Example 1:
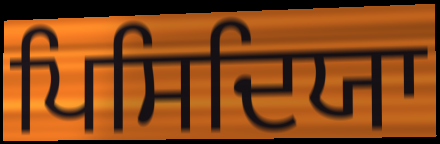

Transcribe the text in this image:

ਪਿਸਿਦਿਯਾ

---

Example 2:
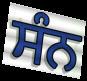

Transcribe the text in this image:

ਸੰਨ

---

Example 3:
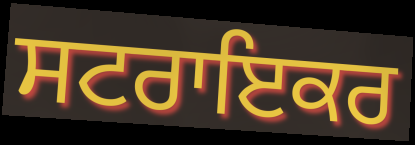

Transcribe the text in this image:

ਸਟਰਾਇਕਰ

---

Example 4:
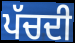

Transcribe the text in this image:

ਪੱਚਦੀ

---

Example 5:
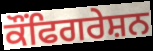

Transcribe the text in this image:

ਕੌਂਫਿਗਰੇਸ਼ਨ